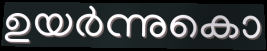
ഉയർന്നുകൊ